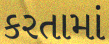
કરતામાં